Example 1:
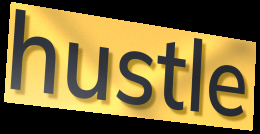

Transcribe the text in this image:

hustle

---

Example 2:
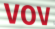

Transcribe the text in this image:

vov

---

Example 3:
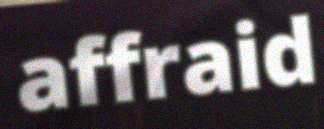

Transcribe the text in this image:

affraid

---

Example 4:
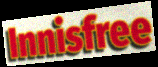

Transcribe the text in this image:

Innisfree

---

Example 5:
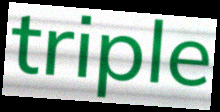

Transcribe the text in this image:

triple